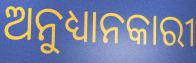
ଅନୁଧ୍ୟାନକାରୀ